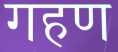
गहण